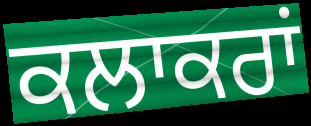
ਕਲਾਕਰਾਂ